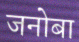
जनोबा